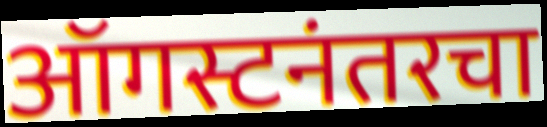
ऑगस्टनंतरचा